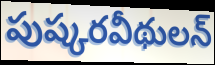
పుష్కరవీథులన్